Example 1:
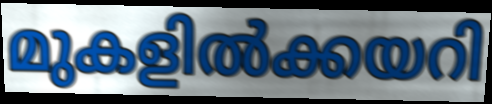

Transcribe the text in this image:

മുകളിൽക്കയറി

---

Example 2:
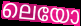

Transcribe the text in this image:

ലെയോ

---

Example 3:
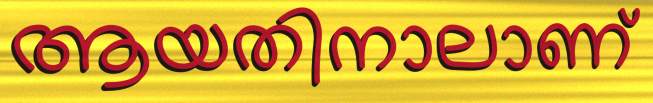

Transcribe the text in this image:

ആയതിനാലാണ്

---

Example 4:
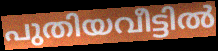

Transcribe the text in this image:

പുതിയവീട്ടിൽ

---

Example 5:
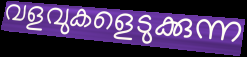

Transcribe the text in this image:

വളവുകളെടുക്കുന്ന